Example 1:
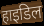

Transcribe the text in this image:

हाइडिल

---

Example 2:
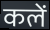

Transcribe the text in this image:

कलें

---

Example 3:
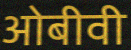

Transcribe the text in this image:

ओबीवी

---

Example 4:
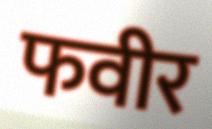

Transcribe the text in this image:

फवीर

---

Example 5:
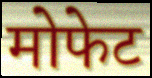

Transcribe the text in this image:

मोफेट